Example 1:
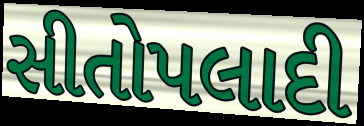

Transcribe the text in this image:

સીતોપલાદી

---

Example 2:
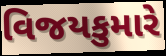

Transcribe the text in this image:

વિજયકુમારે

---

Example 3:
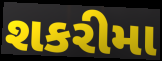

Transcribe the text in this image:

શકરીમા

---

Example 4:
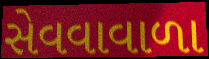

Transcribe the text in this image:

સેવવાવાળા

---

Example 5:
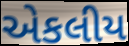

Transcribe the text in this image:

એકલીય